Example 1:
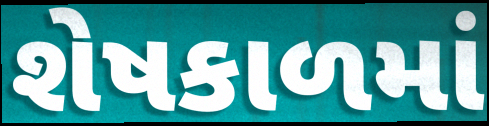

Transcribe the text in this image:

શેષકાળમાં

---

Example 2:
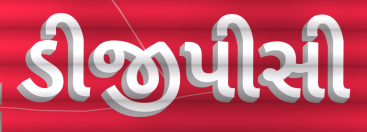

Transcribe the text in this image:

ડીજીપીસી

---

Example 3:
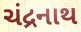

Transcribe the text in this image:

ચંદ્રનાથ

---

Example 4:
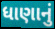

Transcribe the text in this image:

ધાણાનું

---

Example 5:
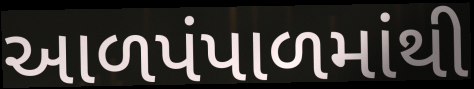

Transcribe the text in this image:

આળપંપાળમાંથી